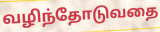
வழிந்தோடுவதை